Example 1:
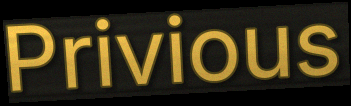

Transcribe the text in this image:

Privious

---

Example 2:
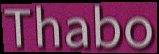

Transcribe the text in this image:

Thabo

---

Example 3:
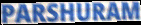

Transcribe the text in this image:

PARSHURAM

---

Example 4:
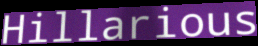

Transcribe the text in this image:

Hillarious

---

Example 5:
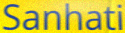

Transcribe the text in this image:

Sanhati